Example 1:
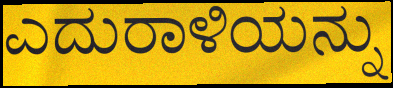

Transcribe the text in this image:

ಎದುರಾಳಿಯನ್ನು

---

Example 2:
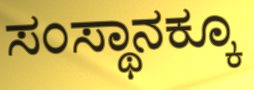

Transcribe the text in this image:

ಸಂಸ್ಥಾನಕ್ಕೂ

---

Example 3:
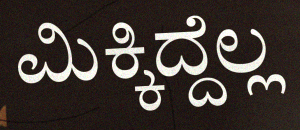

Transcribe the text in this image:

ಮಿಕ್ಕಿದ್ದೆಲ್ಲ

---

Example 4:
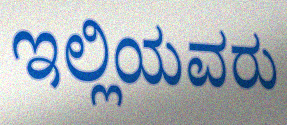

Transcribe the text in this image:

ಇಲ್ಲಿಯವರು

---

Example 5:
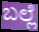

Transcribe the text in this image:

ಬಲ್ಲೆ